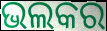
ଭଲକର